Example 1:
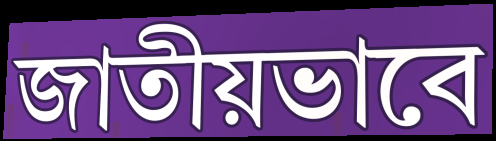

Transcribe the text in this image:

জাতীয়ভাবে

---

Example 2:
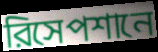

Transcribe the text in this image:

রিসেপশানে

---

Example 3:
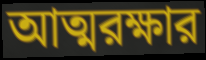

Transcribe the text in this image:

আত্মরক্ষার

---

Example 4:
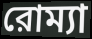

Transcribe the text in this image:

রোম্যা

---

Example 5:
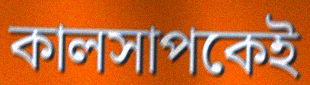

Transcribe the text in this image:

কালসাপকেই